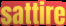
sattire